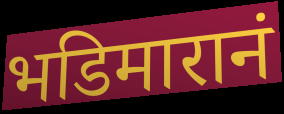
भडिमारानं